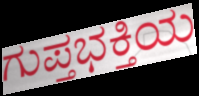
ಗುಪ್ತಭಕ್ತಿಯ